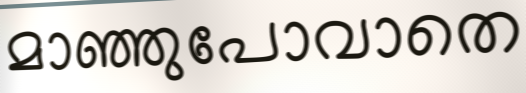
മാഞ്ഞുപോവാതെ